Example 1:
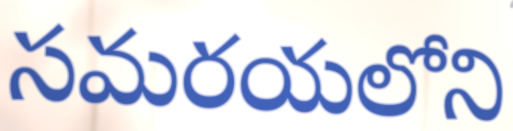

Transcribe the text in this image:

సమరయలోని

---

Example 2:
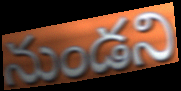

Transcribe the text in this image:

నుండని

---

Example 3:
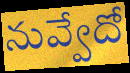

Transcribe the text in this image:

నువ్వేదో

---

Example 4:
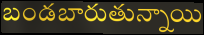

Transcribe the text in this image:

బండబారుతున్నాయి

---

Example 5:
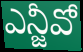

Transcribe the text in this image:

ఎన్జీవో